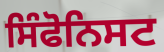
ਸਿੰਫੋਨਿਸਟ